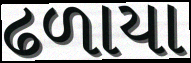
ઢળાયા